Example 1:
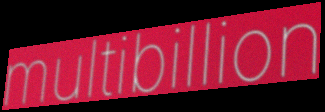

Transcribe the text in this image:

multibillion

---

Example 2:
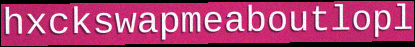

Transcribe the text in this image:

hxckswapmeaboutlopl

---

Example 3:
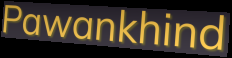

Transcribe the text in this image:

Pawankhind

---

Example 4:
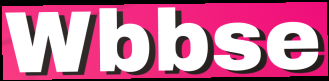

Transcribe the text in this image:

Wbbse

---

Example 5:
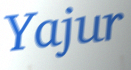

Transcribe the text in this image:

Yajur